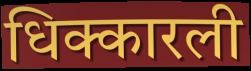
धिक्कारली